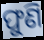
ଫୁଣି